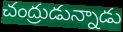
చంద్రుడున్నాడు